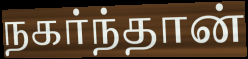
நகர்ந்தான்